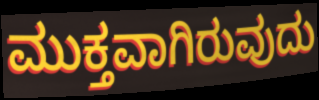
ಮುಕ್ತವಾಗಿರುವುದು